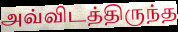
அவ்விடத்திருந்த